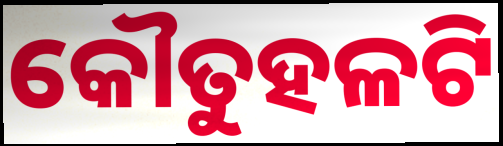
କୌତୁହଳଟି